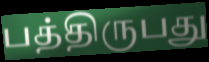
பத்திருபது